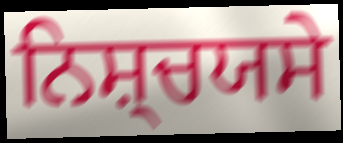
ਨਿਸ਼੍ਚਯਸੇ